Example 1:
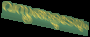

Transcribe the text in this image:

വസ്ത്രങ്ങളുടേയും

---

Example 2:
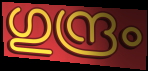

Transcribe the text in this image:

ഗുന്ദ്രം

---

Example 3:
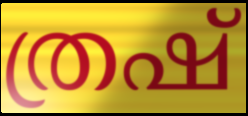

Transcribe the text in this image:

ത്രഷ്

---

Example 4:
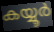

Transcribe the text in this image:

കയ്യൂർ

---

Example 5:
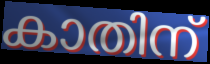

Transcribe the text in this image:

കാതിന്